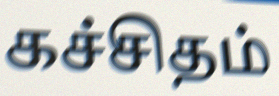
கச்சிதம்